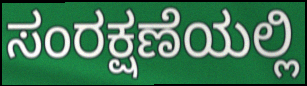
ಸಂರಕ್ಷಣೆಯಲ್ಲಿ